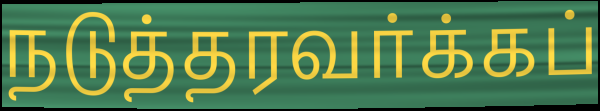
நடுத்தரவர்க்கப்